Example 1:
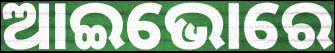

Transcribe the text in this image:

ଆଇଭୋରେ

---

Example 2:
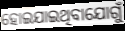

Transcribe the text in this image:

ହୋଇଯାଇଥିବାଯୋଗୁଁ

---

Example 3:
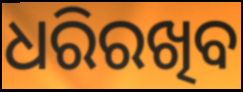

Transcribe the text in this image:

ଧରିରଖିବ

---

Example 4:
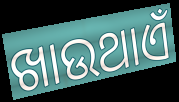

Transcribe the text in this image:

ଖାଉଥାଏଁ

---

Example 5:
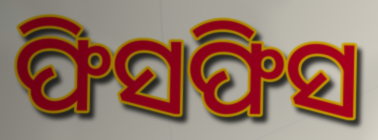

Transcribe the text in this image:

ଫିସଫିସ